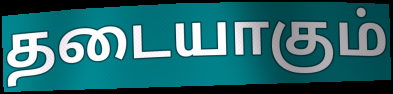
தடையாகும்